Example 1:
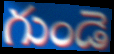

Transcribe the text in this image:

గుండె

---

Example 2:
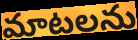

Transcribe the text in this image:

మాటలను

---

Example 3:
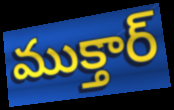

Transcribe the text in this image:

ముక్తార్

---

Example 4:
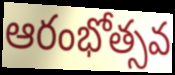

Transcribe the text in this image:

ఆరంభోత్సవ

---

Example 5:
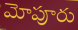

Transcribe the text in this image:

మోపూరు